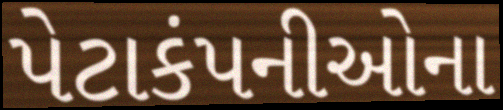
પેટાકંપનીઓના